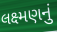
લક્ષ્મણનું